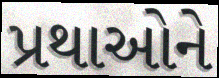
પ્રથાઓને